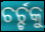
ଚର୍ଚ୍ଚକୁ